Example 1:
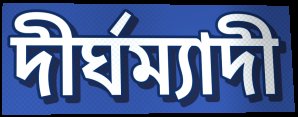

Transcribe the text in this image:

দীৰ্ঘম্যাদী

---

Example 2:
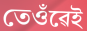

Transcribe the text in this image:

তেওঁৱেই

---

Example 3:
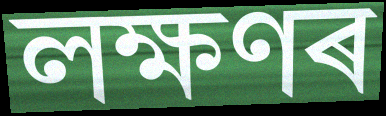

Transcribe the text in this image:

লক্ষণৰ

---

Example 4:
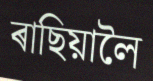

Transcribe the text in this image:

ৰাছিয়ালৈ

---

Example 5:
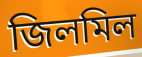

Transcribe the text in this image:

জিলমিল